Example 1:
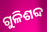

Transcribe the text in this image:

ଗୁଳିଶବ୍ଦ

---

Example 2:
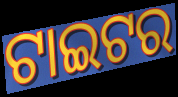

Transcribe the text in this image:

ଟାଇଟର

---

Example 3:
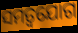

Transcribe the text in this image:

ସମତ୍ୱଯୋଗ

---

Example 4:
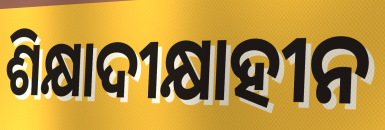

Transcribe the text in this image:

ଶିକ୍ଷାଦୀକ୍ଷାହୀନ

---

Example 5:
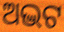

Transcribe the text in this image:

ଅଦ୍ଭଟ